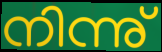
നിന്നു്